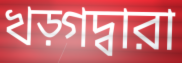
খড়্গদ্বারা